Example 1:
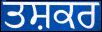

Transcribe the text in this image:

ਤਸ਼ਕਰ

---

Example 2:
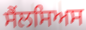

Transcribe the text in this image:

ਸੈਂਲਸਿਅਸ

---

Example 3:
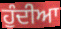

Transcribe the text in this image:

ਹੁੰਦੀਆ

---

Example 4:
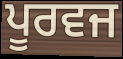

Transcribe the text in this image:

ਪੂਰਵਜ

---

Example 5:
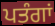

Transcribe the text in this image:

ਪਤੰਗਾਂ